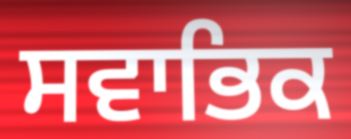
ਸਵਾਭਿਕ